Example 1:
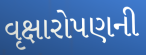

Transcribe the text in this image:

વૃક્ષારોપણની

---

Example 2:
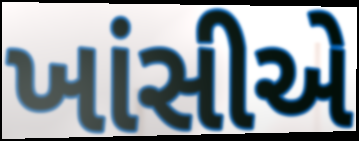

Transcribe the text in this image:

ખાંસીએ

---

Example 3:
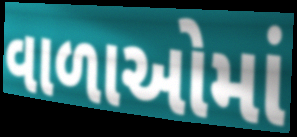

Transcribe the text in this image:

વાળાઓમાં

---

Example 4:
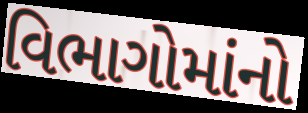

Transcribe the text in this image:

વિભાગોમાંનો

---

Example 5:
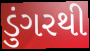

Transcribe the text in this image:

ડુંગરથી